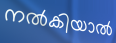
നൽകിയാൽ